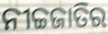
ନୀଚ୍ଚଜାତିର